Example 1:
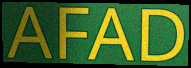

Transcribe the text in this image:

AFAD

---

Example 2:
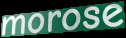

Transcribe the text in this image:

morose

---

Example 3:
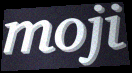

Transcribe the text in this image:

moji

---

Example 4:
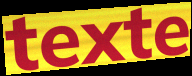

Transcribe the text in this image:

texte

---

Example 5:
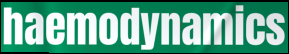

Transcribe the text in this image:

haemodynamics